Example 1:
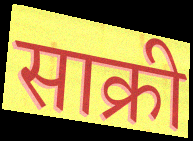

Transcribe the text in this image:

साक्री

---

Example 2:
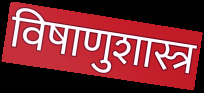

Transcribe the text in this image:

विषाणुशास्त्र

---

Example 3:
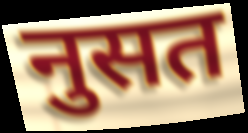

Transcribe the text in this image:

नुसत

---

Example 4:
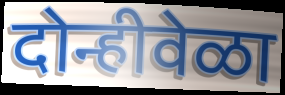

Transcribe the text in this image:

दोन्हीवेळा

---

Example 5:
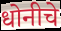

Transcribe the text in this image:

धोनीचे